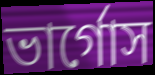
ভার্গোস